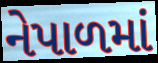
નેપાળમાં